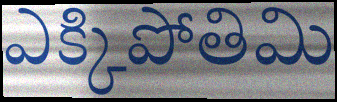
ఎక్కిపోతిమి